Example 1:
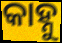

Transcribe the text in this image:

କାହ୍ନୁ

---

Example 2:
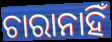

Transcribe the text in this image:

ଚାରାନାହିଁ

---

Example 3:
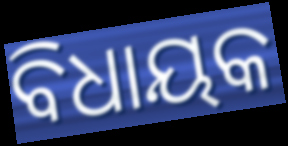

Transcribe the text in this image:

ବିଧାୟକ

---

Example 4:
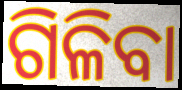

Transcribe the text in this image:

ଗିଳିବା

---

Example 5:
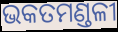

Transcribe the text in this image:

ଭକତମଣ୍ଡଳୀ